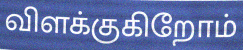
விளக்குகிறோம்